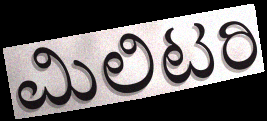
ಮಿಲಿಟರಿ